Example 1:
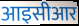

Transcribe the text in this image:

आइसीआर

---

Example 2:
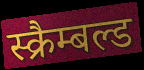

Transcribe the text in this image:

स्क्रैम्बल्ड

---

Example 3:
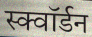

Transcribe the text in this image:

स्क्वॉर्डन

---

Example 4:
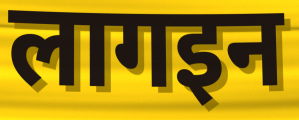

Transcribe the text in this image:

लागइन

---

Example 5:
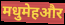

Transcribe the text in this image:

मधुमेहऔर